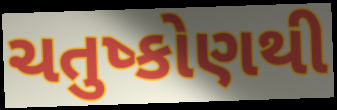
ચતુષ્કોણથી